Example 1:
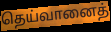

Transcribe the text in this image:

தெய்வானைத்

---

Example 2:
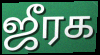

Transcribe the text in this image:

ஜீரக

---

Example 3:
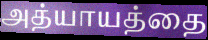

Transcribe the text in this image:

அத்யாயத்தை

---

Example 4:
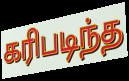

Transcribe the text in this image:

கரிபடிந்த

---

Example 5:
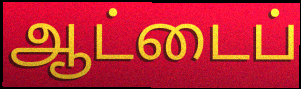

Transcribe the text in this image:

ஆட்டைப்